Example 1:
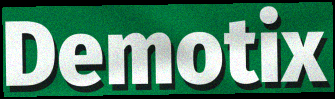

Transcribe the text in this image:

Demotix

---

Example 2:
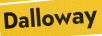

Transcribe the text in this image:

Dalloway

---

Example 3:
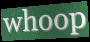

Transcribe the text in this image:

whoop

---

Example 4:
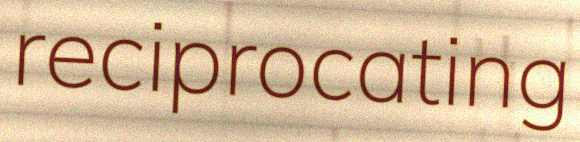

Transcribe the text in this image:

reciprocating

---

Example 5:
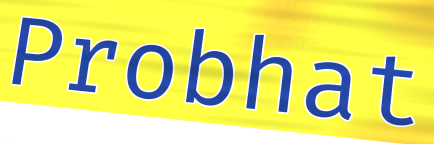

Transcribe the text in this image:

Probhat